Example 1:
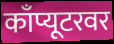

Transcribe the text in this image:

काँप्यूटरवर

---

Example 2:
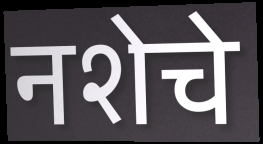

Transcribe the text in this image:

नशेचे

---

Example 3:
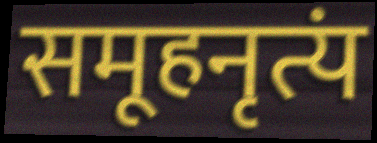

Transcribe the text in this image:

समूहनृत्यं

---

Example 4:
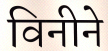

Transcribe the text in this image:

विनीने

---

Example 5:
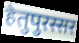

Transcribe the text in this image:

हेतुपुरस्सर